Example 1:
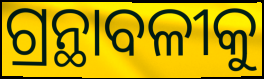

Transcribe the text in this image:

ଗ୍ରନ୍ଥାବଳୀକୁ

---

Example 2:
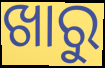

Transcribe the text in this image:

ଖାରୁ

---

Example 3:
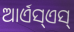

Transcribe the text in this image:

ଆର୍ଏସ୍ଏସ୍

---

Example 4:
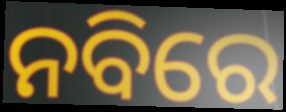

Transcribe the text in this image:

ନବିରେ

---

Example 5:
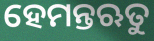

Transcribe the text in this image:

ହେମନ୍ତଋତୁ